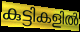
കുട്ടികളിൽ